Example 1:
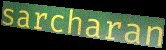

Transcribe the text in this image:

sarcharan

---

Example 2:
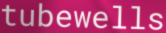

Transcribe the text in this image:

tubewells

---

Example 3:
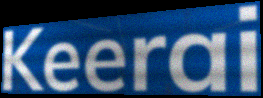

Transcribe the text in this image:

Keerai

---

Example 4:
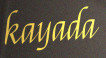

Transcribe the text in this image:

kayada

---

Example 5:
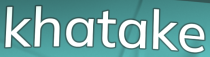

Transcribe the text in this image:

khatake